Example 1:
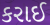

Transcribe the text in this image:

કરાઈ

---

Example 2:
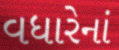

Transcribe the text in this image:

વધારેનાં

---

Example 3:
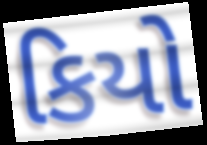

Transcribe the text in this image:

કિયો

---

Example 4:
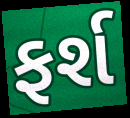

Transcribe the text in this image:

ફર્શ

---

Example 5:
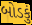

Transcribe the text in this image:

બોડકું